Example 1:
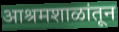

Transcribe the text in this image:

आश्रमशाळांतून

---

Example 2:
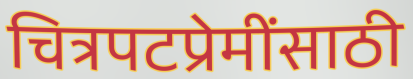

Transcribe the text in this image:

चित्रपटप्रेमींसाठी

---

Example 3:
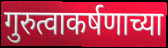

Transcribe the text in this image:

गुरुत्वाकर्षणाच्या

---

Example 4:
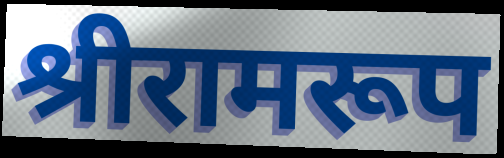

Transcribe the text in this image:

श्रीरामरूप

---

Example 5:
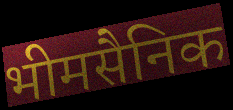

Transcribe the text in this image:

भीमसैनिक